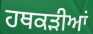
ਹਥਕੜੀਆਂ